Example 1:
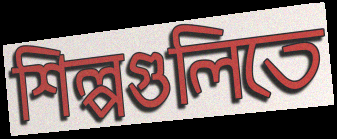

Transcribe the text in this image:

শিল্পগুলিতে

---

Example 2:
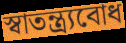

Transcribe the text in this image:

স্বাতন্ত্র্যবোধ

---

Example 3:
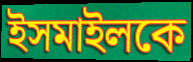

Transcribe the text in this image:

ইসমাইলকে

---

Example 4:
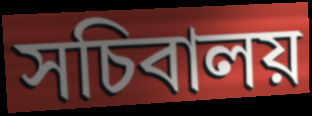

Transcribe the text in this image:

সচিবালয়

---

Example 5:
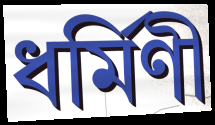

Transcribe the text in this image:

ধর্মিণী